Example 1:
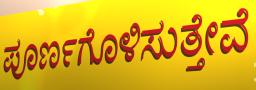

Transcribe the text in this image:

ಪೂರ್ಣಗೊಳಿಸುತ್ತೇವೆ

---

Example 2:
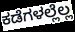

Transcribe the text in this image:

ಕಡೆಗಳಲ್ಲೆಲ್ಲ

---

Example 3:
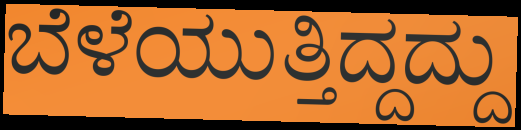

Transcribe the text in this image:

ಬೆಳೆಯುತ್ತಿದ್ದದ್ದು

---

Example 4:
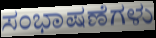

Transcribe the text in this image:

ಸಂಭಾಷಣೆಗಳು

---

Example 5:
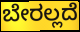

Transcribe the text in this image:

ಬೇರಲ್ಲದೆ